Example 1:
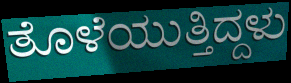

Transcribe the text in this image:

ತೊಳೆಯುತ್ತಿದ್ದಳು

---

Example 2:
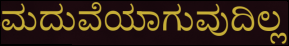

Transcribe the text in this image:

ಮದುವೆಯಾಗುವುದಿಲ್ಲ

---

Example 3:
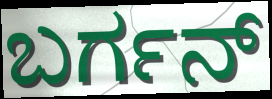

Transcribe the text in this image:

ಬರ್ಗನ್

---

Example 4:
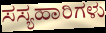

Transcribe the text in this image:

ಸಸ್ಯಹಾರಿಗಳು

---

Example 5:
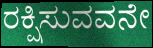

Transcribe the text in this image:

ರಕ್ಷಿಸುವವನೇ